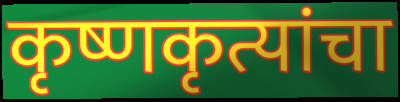
कृष्णकृत्यांचा